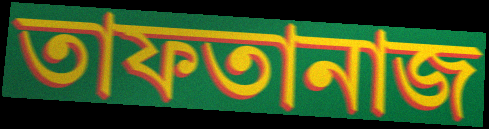
তাফতানাজ